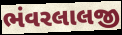
ભંવરલાલજી